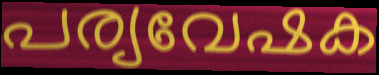
പര്യവേഷക